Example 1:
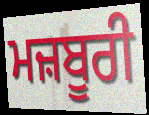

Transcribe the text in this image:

ਮਜ਼ਬੂਰੀ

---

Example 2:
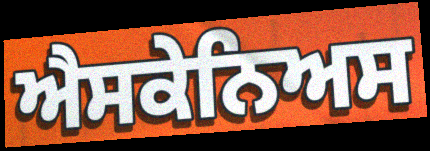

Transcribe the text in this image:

ਐਸਕੇਨਿਅਸ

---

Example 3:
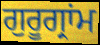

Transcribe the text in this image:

ਗੁਰੂਗ੍ਰਾਂਮ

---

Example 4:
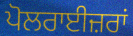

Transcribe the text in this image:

ਪੋਲਰਾਈਜ਼ਰਾਂ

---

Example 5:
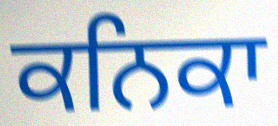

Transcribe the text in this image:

ਕਨਿਕਾ